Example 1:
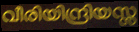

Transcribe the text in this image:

വീരിയിന്ദ്രിയസ്സ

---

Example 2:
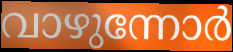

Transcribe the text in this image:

വാഴുന്നോർ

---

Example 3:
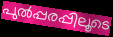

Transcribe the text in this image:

പുൽപ്പരപ്പിലൂടെ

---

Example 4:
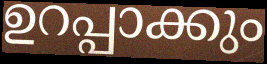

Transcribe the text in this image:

ഉറപ്പാക്കും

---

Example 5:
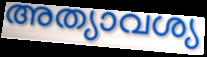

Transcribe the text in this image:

അത്യാവശ്യ